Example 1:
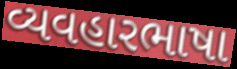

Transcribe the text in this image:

વ્યવહારભાષા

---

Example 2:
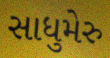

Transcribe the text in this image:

સાધુમેરુ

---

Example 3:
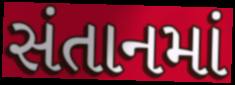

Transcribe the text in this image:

સંતાનમાં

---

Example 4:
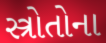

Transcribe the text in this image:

સ્ત્રોતોના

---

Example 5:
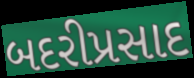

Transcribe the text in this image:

બદરીપ્રસાદ